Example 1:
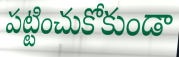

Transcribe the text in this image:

పట్టించుకోకుండా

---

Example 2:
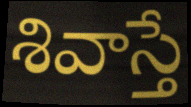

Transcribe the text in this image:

శివాస్తే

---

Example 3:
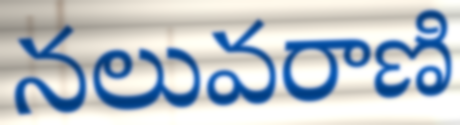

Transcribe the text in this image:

నలువరాణి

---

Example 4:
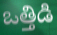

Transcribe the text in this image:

ఒత్తిడి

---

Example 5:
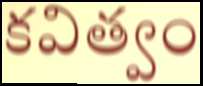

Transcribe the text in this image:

కవిత్వం